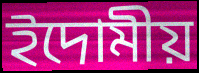
ইদোমীয়